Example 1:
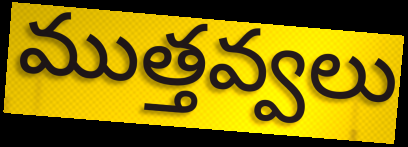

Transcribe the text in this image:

ముత్తవ్వలు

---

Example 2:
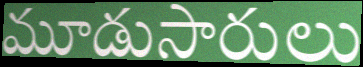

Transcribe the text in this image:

మూడుసారులు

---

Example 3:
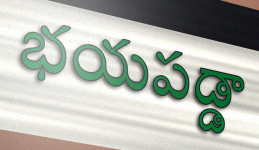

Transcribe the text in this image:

భయపడ్డా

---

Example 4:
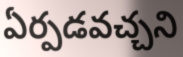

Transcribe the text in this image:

ఏర్పడవచ్చని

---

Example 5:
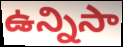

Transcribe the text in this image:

ఉన్నిసా